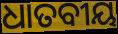
ଧାତବୀୟ